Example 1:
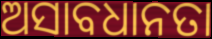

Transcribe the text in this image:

ଅସାବଧାନତା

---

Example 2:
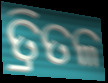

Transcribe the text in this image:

ତ୍ରିତଳ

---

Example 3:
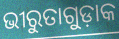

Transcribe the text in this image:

ଭୀରୁତାଗୁଡ଼ାକ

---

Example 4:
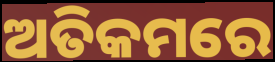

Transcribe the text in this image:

ଅତିକମରେ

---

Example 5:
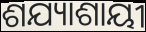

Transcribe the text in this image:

ଶଯ୍ୟାଶାୟୀ